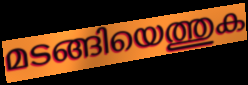
മടങ്ങിയെത്തുക